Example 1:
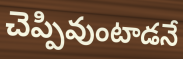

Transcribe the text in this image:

చెప్పివుంటాడనే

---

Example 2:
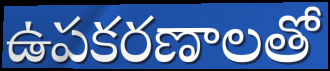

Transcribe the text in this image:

ఉపకరణాలతో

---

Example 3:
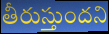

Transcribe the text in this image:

తీరుస్తుందని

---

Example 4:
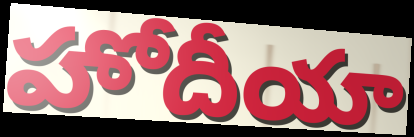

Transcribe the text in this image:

హోదీయా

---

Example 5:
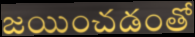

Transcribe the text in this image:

జయించడంతో